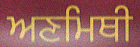
ਅਣਮਿਥੀ